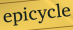
epicycle